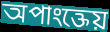
অপাংক্তেয়